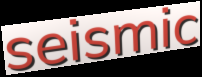
seismic